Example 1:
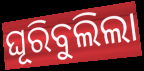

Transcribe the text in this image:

ଘୂରିବୁଲିଲା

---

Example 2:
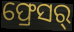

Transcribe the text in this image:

ଫ୍ରେସର୍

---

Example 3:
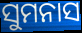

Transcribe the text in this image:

ସୁମନାସ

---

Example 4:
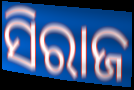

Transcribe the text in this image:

ସିରାଜ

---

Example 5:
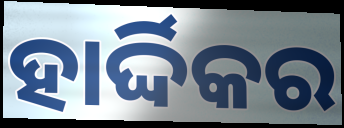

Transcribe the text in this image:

ହାର୍ଦ୍ଦିକର